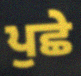
ਪੁਛੇ